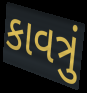
કાવત્રું